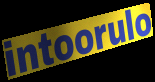
intoorulo